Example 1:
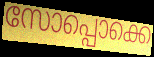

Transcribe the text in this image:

സോപ്പൊക്കെ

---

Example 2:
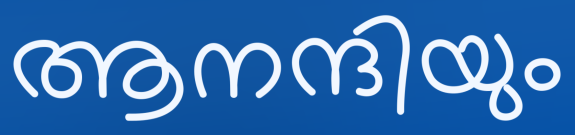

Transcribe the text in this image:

ആനന്ദിയും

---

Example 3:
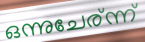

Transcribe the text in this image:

ഒന്നുചേര്ന്ന്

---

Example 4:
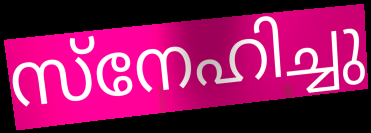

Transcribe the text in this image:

സ്നേഹിച്ചു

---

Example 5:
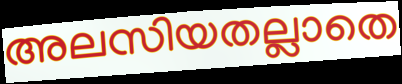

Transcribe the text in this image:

അലസിയതല്ലാതെ